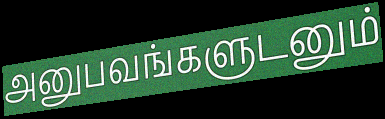
அனுபவங்களுடனும்